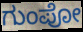
ಗುಂಪೋ